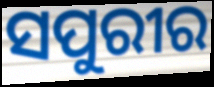
ସପୁରୀର